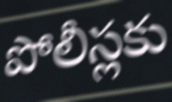
పోలీస్లకు